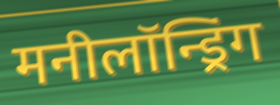
मनीलॉन्ड्रिंग